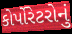
કોર્પોરેટરોનું